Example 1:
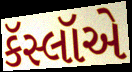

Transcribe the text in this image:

કૅસ્લૉએ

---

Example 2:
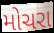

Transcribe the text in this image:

મોચરા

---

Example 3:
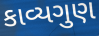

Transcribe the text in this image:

કાવ્યગુણ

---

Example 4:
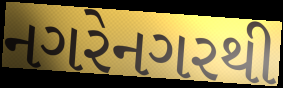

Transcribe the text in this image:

નગરેનગરથી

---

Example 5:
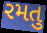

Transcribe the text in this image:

રમતુ